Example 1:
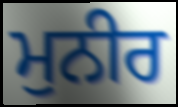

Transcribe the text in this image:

ਮੁਨੀਰ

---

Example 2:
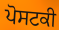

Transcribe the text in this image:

ਪੋਸਟਕੀ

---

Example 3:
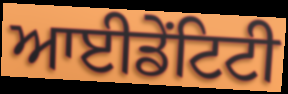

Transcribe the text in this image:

ਆਈਡੇਂਟਿਟੀ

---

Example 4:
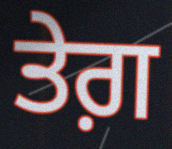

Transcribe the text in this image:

ਤੇਗ਼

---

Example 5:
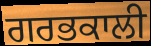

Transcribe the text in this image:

ਗਰਭਕਾਲੀ